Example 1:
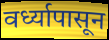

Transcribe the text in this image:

वर्ध्यापासून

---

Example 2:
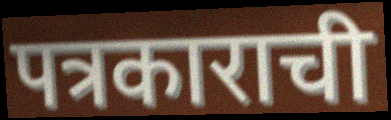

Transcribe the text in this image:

पत्रकाराची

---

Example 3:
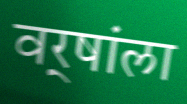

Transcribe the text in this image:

वर्षांला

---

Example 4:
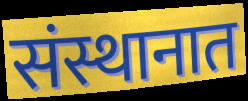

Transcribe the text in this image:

संस्थानात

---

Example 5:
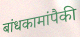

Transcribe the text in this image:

बांधकामांपैकी